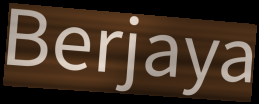
Berjaya